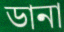
ডানা